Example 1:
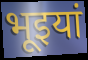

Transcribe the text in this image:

भूइयां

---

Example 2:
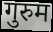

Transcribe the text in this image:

गुरुम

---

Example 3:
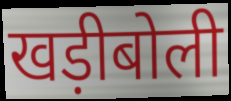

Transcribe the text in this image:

खड़ीबोली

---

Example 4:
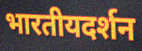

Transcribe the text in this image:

भारतीयदर्शन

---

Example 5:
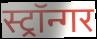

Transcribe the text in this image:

स्ट्रॉन्गर